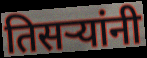
तिसऱ्यांनी